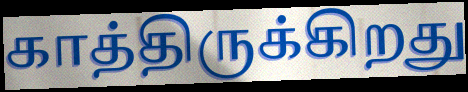
காத்திருக்கிறது